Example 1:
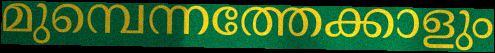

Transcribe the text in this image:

മുമ്പെന്നത്തേക്കാളും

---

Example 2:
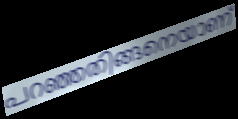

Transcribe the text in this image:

പറഞ്ഞതിങ്ങനെയാണ്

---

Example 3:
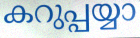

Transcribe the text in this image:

കറുപ്പയ്യാ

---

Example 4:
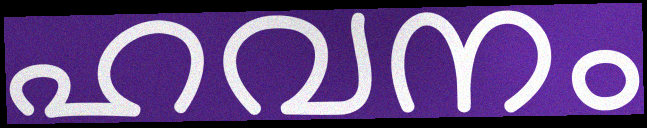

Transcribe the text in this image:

ഹവനം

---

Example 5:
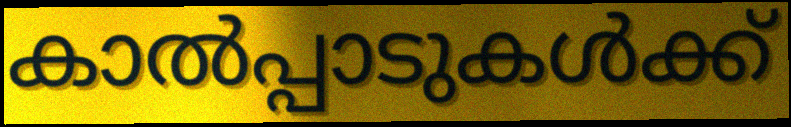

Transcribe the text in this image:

കാൽപ്പാടുകൾക്ക്